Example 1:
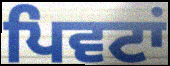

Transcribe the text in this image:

ਪਿਵਟਾਂ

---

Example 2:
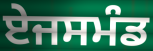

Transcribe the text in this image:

ਏਜਸਮੰਡ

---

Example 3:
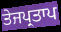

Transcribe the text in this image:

ਤੇਜਪ੍ਰਤਾਪ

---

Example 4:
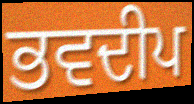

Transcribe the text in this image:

ਭਵਦੀਪ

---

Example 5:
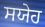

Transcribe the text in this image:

ਸਯੇਹ